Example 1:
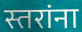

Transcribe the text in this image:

स्तरांना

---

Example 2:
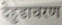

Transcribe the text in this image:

देहुडाचरण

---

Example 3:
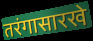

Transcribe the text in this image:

तरंगासारखे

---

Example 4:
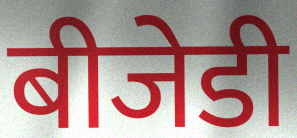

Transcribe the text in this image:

बीजेडी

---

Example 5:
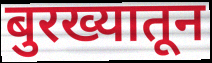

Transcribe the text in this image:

बुरख्यातून